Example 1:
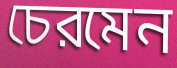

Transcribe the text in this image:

চেরমেন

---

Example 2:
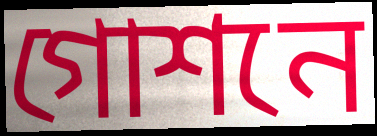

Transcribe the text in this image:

গোশনে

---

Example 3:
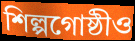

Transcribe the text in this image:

শিল্পগোষ্ঠীও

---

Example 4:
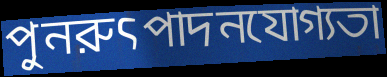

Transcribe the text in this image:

পুনরুৎপাদনযোগ্যতা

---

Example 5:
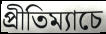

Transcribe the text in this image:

প্রীতিম্যাচে